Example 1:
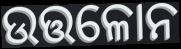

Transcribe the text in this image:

ଉତ୍ତଳୋନ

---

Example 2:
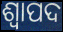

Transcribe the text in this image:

ଶ୍ୱାପଦ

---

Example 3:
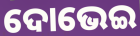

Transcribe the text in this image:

ଦୋଭେଇ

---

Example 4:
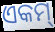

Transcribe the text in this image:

ଏକମ୍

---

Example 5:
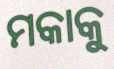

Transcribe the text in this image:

ମକାକୁ